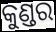
କୁଣ୍ଡର